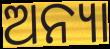
ଅନ୍ୟା